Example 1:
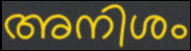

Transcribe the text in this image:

അനിശം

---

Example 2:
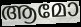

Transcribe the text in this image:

ആമോ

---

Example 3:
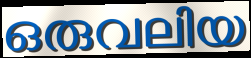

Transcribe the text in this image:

ഒരുവലിയ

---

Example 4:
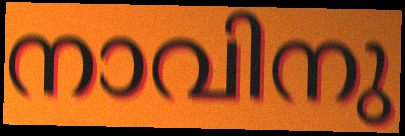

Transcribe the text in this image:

നാവിനു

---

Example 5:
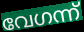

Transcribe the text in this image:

വേഗന്ന്